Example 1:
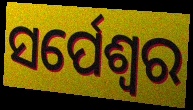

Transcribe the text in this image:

ସର୍ପେଶ୍ୱର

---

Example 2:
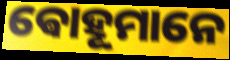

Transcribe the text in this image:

ଵୋହୂମାନେ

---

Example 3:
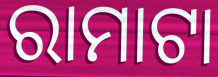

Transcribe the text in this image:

ରାମାଟା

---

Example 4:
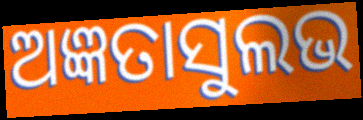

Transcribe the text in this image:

ଅଜ୍ଞତାସୁଲଭ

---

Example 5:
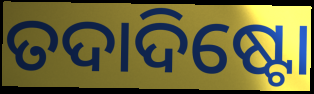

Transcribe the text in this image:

ତଦାଦିଷ୍ଟୋ